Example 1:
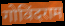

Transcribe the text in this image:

गोविंदराम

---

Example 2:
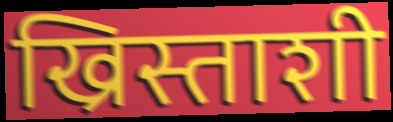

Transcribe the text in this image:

ख्रिस्ताशी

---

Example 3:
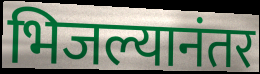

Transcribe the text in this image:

भिजल्यानंतर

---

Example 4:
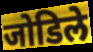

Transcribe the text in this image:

जोडिले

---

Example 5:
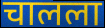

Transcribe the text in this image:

चालला